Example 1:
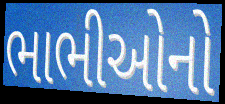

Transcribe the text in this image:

ભાભીઓનો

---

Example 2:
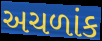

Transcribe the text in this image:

અચળાંક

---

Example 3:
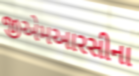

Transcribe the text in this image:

જીએમઆરસીના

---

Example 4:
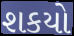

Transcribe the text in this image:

શકયો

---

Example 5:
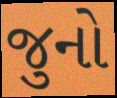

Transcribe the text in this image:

જુનો